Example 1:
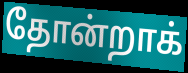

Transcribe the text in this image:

தோன்றாக்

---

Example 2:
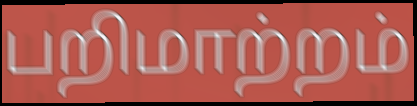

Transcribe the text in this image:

பறிமாற்றம்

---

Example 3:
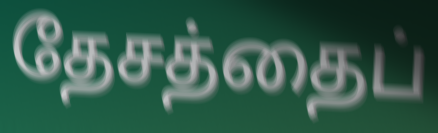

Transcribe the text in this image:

தேசத்தைப்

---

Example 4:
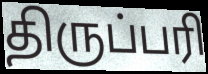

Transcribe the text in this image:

திருப்பரி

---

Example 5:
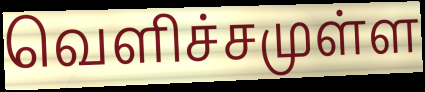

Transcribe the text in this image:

வெளிச்சமுள்ள